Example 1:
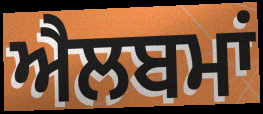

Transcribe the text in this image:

ਐਲਬਮਾਂ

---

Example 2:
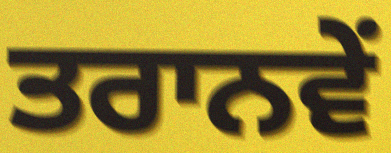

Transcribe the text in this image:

ਤਰਾਨਵੇਂ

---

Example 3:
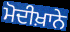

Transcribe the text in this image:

ਮੋਦੀਖ਼ਾਨੇ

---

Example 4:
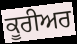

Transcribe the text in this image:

ਕੂਰੀਅਰ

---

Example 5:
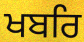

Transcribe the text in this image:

ਖਬਰਿ